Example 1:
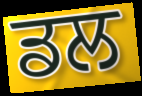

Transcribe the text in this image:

ਡਲ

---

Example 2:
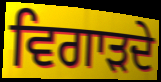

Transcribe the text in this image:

ਵਿਗਾੜਦੇ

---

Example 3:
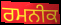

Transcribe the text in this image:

ਰਮਨੀਕ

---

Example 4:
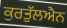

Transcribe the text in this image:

ਕੁਰਤੁੱਲਐਨ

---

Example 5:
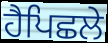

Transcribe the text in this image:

ਹੈਪਿਛਲੇ